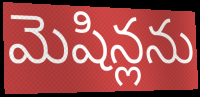
మెషిన్లను